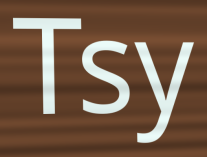
Tsy